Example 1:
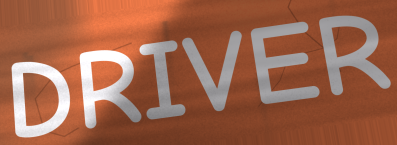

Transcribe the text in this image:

DRIVER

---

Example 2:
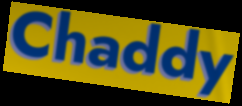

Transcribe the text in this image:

Chaddy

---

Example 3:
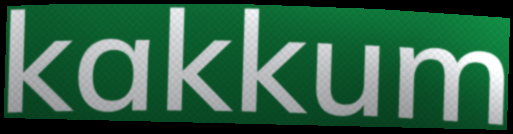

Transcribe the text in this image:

kakkum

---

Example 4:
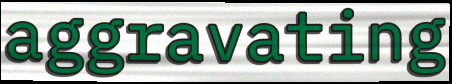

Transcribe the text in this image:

aggravating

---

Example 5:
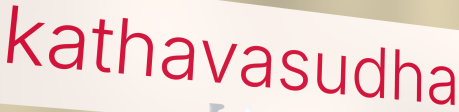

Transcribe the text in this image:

kathavasudha